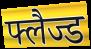
फ्लैज्ड